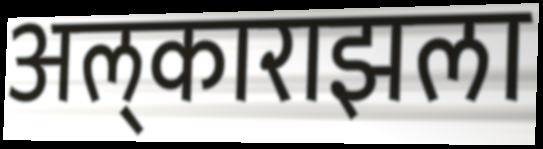
अल्काराझला